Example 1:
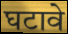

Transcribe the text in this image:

घटावे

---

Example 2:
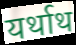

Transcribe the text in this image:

यर्थाथ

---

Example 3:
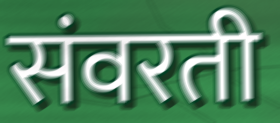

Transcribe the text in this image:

संवरती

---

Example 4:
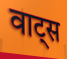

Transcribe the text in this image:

वाट्स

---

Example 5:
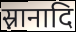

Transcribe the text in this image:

स्नानादि